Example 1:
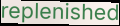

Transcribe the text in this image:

replenished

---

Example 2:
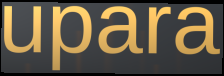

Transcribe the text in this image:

upara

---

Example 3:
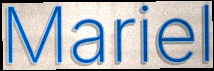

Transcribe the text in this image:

Mariel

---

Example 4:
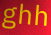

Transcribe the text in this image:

ghh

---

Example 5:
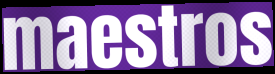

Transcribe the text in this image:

maestros